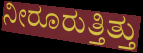
ನೀರೂರುತ್ತಿತ್ತು